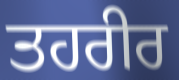
ਤਹਰੀਰ